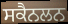
ਸਕੈਨਲਨ